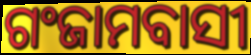
ଗଂଜାମବାସୀ